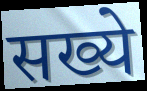
सख्ये